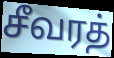
சீவரத்